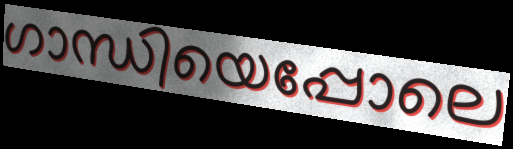
ഗാന്ധിയെപ്പോലെ